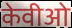
केवीओ